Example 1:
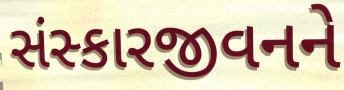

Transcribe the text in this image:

સંસ્કારજીવનને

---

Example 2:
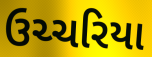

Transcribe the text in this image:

ઉચ્ચરિયા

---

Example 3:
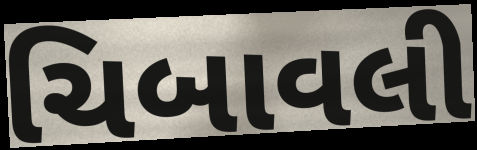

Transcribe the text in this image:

ચિબાવલી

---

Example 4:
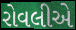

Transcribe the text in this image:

રોવલીએ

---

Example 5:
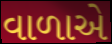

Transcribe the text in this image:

વાળાએ